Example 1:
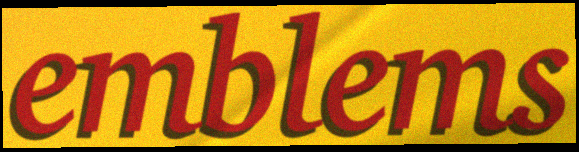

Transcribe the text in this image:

emblems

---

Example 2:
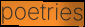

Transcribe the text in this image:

poetries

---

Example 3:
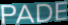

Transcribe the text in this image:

PADE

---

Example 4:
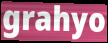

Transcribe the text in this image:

grahyo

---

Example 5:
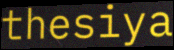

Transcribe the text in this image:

thesiya